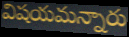
విషయమన్నారు